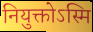
नियुक्तोऽस्मि